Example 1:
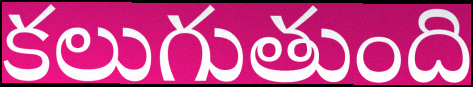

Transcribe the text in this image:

కలుగుతుంది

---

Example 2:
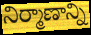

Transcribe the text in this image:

నిర్మాణాన్ని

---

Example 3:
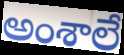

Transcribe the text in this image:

అంశాలే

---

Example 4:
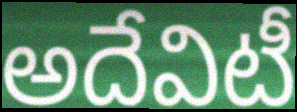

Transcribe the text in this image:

అదేవిటీ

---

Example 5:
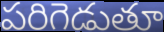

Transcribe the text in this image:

పరిగెడుతూ